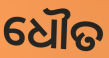
ଧୌତ